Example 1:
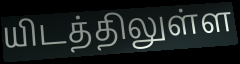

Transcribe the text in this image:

யிடத்திலுள்ள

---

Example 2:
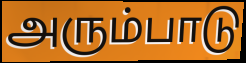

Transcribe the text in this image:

அரும்பாடு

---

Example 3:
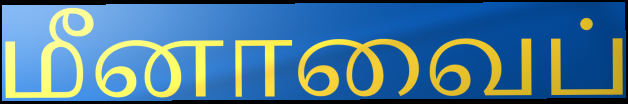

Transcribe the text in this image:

மீனாவைப்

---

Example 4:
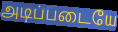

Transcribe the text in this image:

அடிப்படையே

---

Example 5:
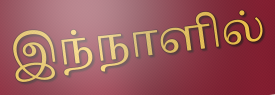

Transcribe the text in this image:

இந்நாளில்